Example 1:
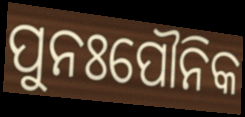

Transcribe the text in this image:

ପୁନଃପୌନିକ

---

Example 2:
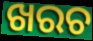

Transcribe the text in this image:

ଖରଚ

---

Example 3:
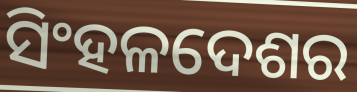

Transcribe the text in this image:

ସିଂହଳଦେଶର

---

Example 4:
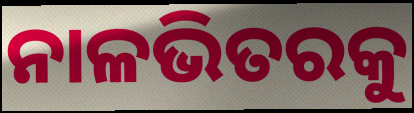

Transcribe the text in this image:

ନାଳଭିତରକୁ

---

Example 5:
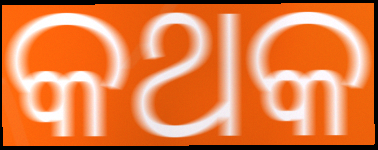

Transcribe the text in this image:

କଥକ